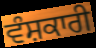
ਵੰਸ਼ਕਾਰੀ